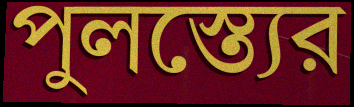
পুলস্ত্যের